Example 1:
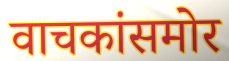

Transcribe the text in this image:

वाचकांसमोर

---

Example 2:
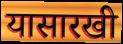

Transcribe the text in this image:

यासारखी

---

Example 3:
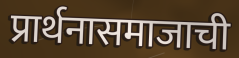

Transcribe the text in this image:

प्रार्थनासमाजाची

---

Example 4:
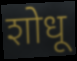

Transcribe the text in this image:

शोधू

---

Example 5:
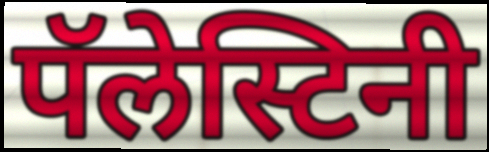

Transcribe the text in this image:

पॅलेस्टिनी